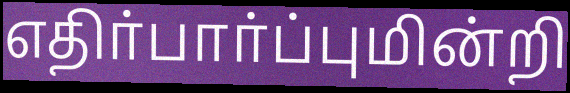
எதிர்பார்ப்புமின்றி